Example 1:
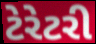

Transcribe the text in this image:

ટેરેટરી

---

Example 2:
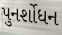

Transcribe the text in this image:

પુનર્શોધન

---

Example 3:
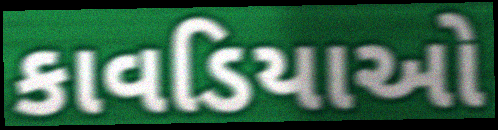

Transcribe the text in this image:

કાવડિયાઓ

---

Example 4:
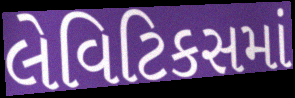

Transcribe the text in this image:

લેવિટિકસમાં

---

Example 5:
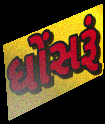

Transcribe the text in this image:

ધોંસરૂં